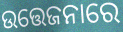
ଉତ୍ତେଜନାରେ